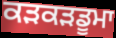
ਕੜਕੜਡੂਮਾ